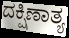
ದಕ್ಷಿಣಾತ್ಯ